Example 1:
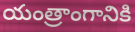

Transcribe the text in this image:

యంత్రాంగానికి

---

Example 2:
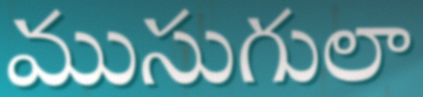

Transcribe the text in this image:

ముసుగులా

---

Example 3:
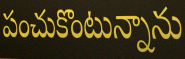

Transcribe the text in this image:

పంచుకొంటున్నాను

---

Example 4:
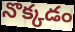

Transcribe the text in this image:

నొక్కడం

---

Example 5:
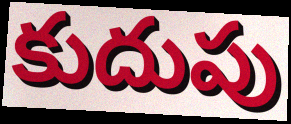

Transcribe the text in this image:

కుదుపు